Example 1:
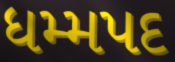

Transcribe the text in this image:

ધમ્મપદ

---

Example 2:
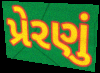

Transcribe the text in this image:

પ્રેરણું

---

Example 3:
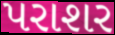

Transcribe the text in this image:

પરાશર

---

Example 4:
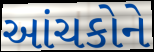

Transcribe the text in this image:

આંચકોને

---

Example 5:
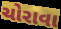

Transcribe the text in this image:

ચોરાવા